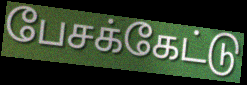
பேசக்கேட்டு